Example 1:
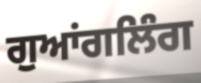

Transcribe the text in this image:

ਗੁਆਂਗਲਿੰਗ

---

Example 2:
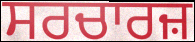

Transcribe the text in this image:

ਸਰਚਾਰਜ਼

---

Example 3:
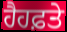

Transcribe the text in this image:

ਹੈਹਫ਼ਤੇ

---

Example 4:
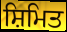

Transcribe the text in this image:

ਸ਼ਿਮਿਤ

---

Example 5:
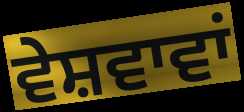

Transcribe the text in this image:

ਵੇਸ਼ਵਾਵਾਂ